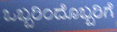
ಒಬ್ಬರಿಂದೊಬ್ಬರಿಗೆ